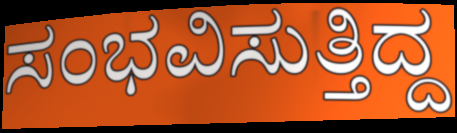
ಸಂಭವಿಸುತ್ತಿದ್ದ